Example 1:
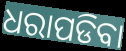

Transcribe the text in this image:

ଧରାପଡିବା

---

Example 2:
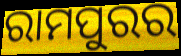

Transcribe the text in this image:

ରାମପୁରର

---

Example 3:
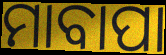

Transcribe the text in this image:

ମାବାପା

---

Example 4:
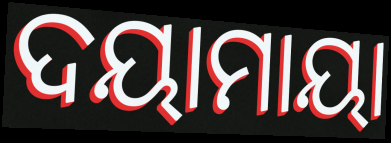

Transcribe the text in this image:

ଦୟାମାୟା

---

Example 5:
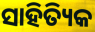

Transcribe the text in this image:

ସାହିତ୍ୟିକ